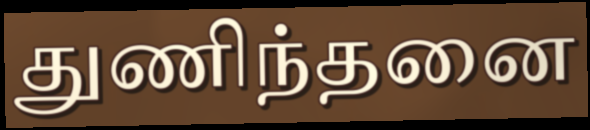
துணிந்தனை